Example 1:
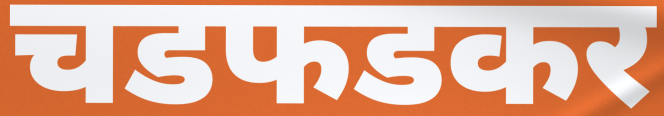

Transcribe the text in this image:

चडफडकर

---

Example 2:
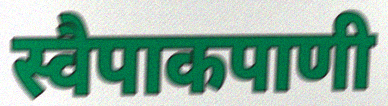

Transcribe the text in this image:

स्वैपाकपाणी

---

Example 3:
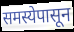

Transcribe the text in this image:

समस्येपासून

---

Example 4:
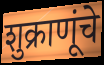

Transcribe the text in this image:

शुक्राणूंचे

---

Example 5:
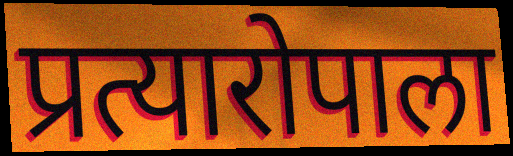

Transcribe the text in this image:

प्रत्यारोपाला